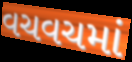
વચવચમાં